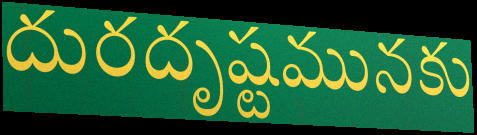
దురదృష్టమునకు